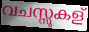
വചസ്സുകള്